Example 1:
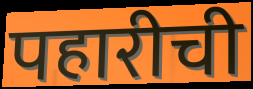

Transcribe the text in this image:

पहारीची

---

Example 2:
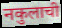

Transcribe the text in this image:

नकुलाची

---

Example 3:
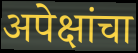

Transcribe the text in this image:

अपेक्षांचा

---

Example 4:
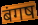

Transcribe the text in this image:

बंगष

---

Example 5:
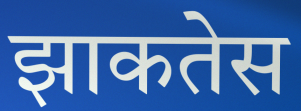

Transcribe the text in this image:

झाकतेस